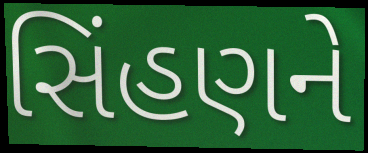
સિંહણને